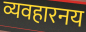
व्यवहारनय